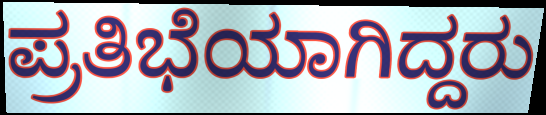
ಪ್ರತಿಭೆಯಾಗಿದ್ದರು